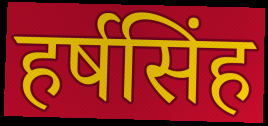
हर्षसिंह